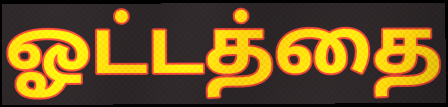
ஓட்டத்தை